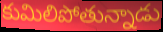
కుమిలిపోతున్నాడు